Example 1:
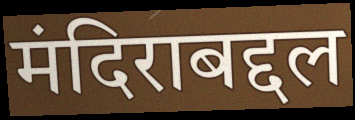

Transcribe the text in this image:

मंदिराबद्दल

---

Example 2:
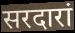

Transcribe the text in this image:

सरदारां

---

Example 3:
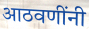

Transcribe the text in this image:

आठवणींनी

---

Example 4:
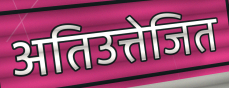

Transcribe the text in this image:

अतिउत्तेजित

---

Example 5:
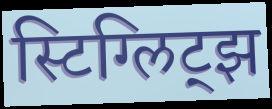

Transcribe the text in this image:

स्टिग्लिट्झ